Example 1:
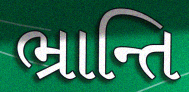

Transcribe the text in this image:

ભ્રાન્તિ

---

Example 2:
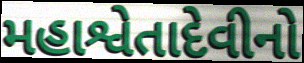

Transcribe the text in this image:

મહાશ્વેતાદેવીનો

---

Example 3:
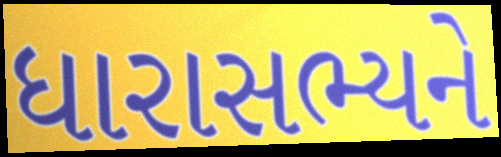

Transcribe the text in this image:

ધારાસભ્યને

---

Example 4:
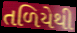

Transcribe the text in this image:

તળિયેથી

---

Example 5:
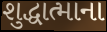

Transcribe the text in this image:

શુદ્ધાત્માના